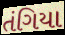
તંગિયા